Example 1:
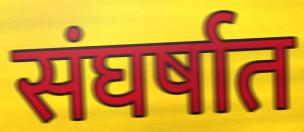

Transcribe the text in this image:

संघर्षात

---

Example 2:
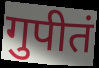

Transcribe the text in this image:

गुपीतं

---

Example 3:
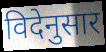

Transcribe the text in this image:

विदेनुसार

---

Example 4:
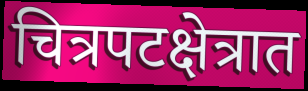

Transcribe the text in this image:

चित्रपटक्षेत्रात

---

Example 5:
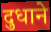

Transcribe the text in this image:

दुधाने